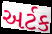
અર્ટક